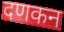
दणकन